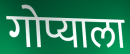
गोप्याला